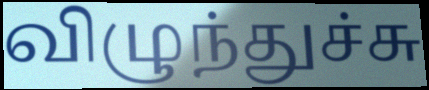
விழுந்துச்சு